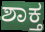
ಶಾಕ್ತ